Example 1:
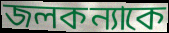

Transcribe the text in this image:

জলকন্যাকে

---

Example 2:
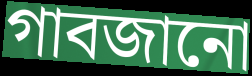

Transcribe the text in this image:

গাবজানো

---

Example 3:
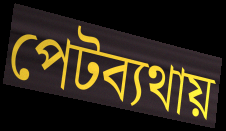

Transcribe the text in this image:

পেটব্যথায়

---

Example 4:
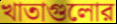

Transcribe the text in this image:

খাতাগুলোর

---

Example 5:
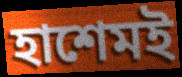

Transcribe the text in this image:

হাশেমই